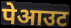
पेआउट